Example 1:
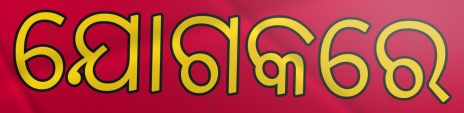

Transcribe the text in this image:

ଯୋଗକରେ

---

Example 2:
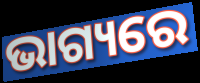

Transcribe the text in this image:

ଭାଗ୍ୟରେ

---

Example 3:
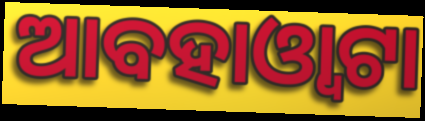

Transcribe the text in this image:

ଆବହାଓ୍ୱାଟା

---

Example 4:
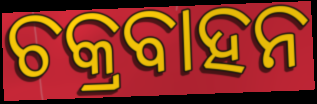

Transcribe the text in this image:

ଚକ୍ରବାହନ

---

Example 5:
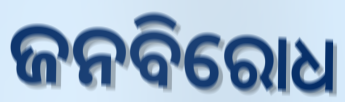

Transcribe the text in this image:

ଜନବିରୋଧ